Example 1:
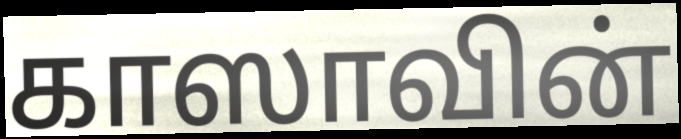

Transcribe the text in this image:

காஸாவின்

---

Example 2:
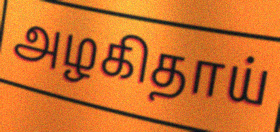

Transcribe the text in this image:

அழகிதாய்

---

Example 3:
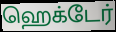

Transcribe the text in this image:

ஹெக்டேர்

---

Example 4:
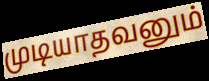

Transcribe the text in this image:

முடியாதவனும்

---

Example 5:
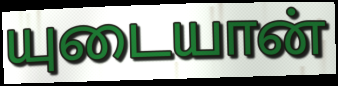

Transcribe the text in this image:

யுடையான்